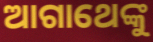
ଆଗାଥେଙ୍କୁ